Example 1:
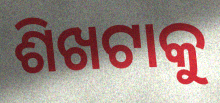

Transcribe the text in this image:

ଶିଖଟାକୁ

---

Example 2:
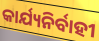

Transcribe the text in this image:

କାର୍ଯ୍ୟନିର୍ବାହୀ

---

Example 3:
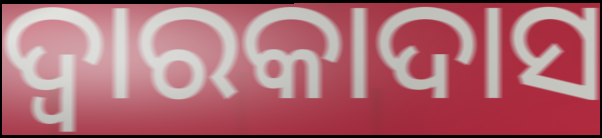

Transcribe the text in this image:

ଦ୍ୱାରକାଦାସ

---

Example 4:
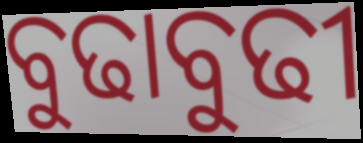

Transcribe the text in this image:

ବୁଢାବୁଢୀ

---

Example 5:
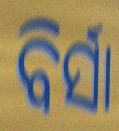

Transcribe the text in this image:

ବିର୍ସା